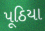
પૂઠિયા